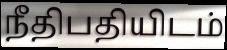
நீதிபதியிடம்